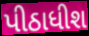
પીઠાધીશ